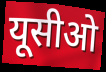
यूसीओ